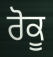
ਰੋਕੂ